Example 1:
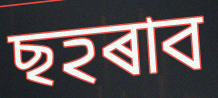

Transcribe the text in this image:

ছহৰাব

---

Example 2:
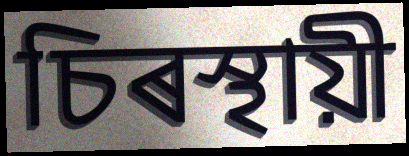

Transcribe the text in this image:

চিৰস্থায়ী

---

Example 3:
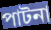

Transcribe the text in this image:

পাটনা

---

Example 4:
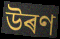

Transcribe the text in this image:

উৰণ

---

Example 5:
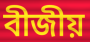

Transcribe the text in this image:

বীজীয়